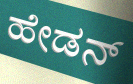
ಹೇಡನ್